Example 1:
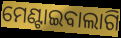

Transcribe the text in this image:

ମେଣ୍ଟାଇବାଲାଗି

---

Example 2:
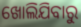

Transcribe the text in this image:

ଖୋଲିଯିବାରୁ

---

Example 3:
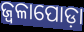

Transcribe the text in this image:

ଜ୍ୱଳାପୋଡ଼ା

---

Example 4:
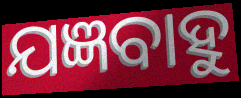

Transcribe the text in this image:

ଯଜ୍ଞବାହୁ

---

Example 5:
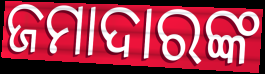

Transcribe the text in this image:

ଜମାଦାରଙ୍କ